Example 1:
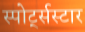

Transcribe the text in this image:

स्पोर्ट्सस्टार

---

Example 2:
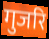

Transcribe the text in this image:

गुजरि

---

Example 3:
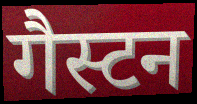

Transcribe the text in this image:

गैस्टन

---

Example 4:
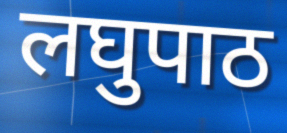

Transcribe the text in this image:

लघुपाठ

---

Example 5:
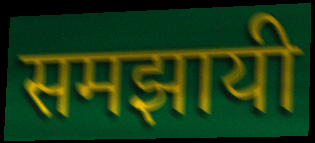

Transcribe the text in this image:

समझायी